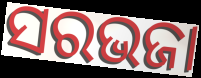
ସରଭଜା